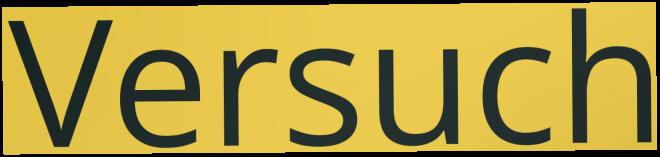
Versuch